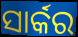
ସାର୍କର